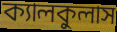
ক্যালকুলাস